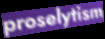
proselytism